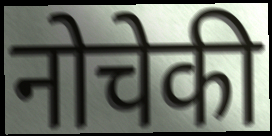
नोचेकी